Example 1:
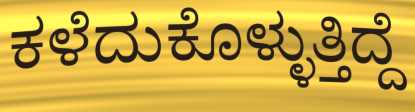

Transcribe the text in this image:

ಕಳೆದುಕೊಳ್ಳುತ್ತಿದ್ದೆ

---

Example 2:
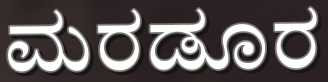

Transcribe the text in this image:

ಮರಡೂರ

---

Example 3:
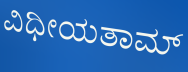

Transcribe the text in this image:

ವಿಧೀಯತಾಮ್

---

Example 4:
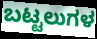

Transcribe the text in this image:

ಬಟ್ಟಲುಗಳ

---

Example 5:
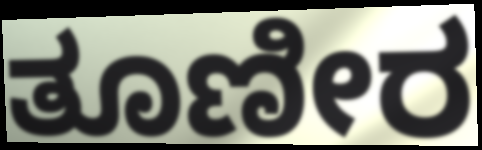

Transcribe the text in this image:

ತೂಣೀರ